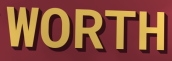
WORTH